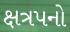
ક્ષત્રપનો